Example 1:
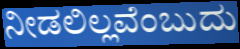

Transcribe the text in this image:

ನೀಡಲಿಲ್ಲವೆಂಬುದು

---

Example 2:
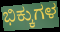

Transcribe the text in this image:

ಭಿಕ್ಕುಗಳ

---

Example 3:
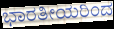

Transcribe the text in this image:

ಭಾರತೀಯರಿಂದ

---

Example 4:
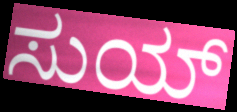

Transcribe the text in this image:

ಸುಯ್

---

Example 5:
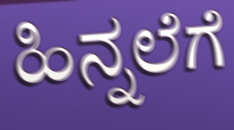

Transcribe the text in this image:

ಹಿನ್ನಲೆಗೆ